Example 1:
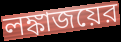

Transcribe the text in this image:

লঙ্কাজয়ের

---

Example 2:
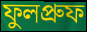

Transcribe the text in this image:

ফুলপ্রুফ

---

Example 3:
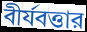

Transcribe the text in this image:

বীর্যবত্তার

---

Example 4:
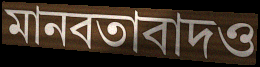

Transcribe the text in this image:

মানবতাবাদও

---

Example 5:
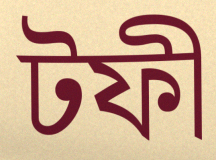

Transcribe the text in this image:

টফী